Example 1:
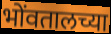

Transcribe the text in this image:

भोंवतालच्या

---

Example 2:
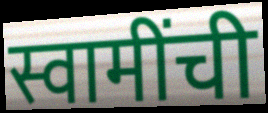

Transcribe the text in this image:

स्वामींची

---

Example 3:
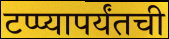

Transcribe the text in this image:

टप्प्यापर्यंतची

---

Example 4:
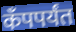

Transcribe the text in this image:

कँपपर्यंत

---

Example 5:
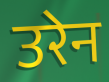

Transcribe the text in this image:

उरेन